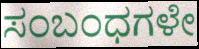
ಸಂಬಂಧಗಳೇ